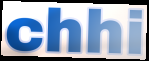
chhi